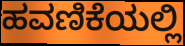
ಹವಣಿಕೆಯಲ್ಲಿ